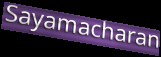
Sayamacharan